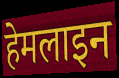
हेमलाइन